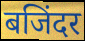
बजिंदर